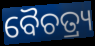
ବୈଚତ୍ର୍ୟ